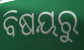
ବିଷୟରୁ